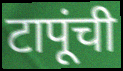
टापूंची